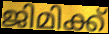
ജിമിക്ക്